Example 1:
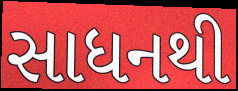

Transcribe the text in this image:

સાધનથી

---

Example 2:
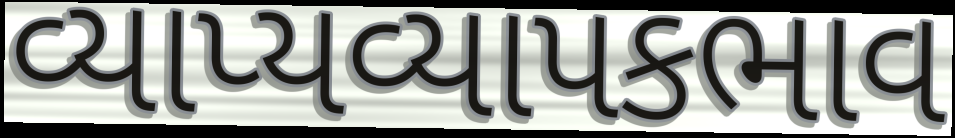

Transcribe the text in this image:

વ્યાપ્યવ્યાપકભાવ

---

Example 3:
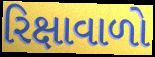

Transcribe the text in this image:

રિક્ષાવાળો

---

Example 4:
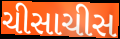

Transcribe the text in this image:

ચીસાચીસ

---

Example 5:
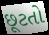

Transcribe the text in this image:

છૂટતો